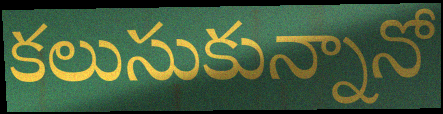
కలుసుకున్నానో